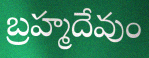
బ్రహ్మదేవుం